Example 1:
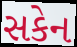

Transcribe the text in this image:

સકેન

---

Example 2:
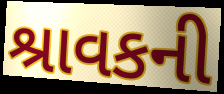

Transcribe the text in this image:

શ્રાવકની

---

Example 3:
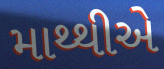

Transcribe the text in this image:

માથ્થીએ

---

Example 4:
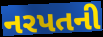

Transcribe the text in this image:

નરપતની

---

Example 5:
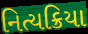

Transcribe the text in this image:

નિત્યક્રિયા